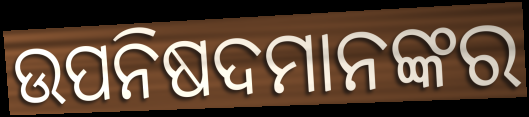
ଉପନିଷଦମାନଙ୍କର